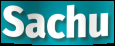
Sachu